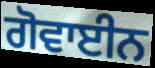
ਗੋਵਾਈਨ